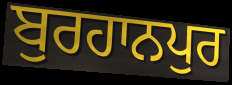
ਬੁਰਹਾਨਪੁਰ